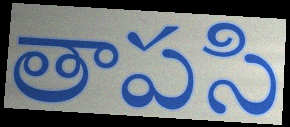
తాపసి